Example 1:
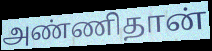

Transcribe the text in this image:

அண்ணிதான்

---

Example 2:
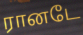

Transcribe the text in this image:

ரானடே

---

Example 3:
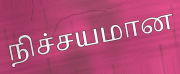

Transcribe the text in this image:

நிச்சயமான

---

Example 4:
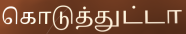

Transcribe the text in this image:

கொடுத்துட்டா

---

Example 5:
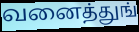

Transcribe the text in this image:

வனைத்துங்